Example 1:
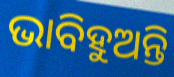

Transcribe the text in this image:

ଭାବିହୁଅନ୍ତି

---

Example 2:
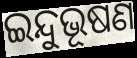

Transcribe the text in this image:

ଇନ୍ଦୁଭୂଷଣ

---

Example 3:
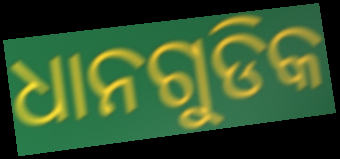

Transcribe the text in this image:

ଧାନଗୁଡିକ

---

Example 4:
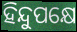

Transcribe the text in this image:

ହିନ୍ଦୁପକ୍ଷେ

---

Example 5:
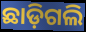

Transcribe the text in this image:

ଛାଡ଼ିଗଲି